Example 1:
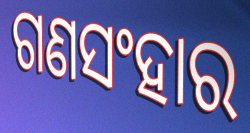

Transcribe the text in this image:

ଗଣସଂହାର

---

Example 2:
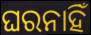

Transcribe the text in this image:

ଘରନାହିଁ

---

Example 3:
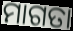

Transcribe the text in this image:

ମାଗତା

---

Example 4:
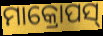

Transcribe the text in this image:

ମାକ୍ରୋପସ୍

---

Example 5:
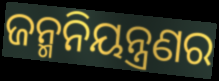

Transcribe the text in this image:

ଜନ୍ମନିୟନ୍ତ୍ରଣର